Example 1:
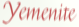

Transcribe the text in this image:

Yemenite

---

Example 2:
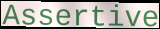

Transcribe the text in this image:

Assertive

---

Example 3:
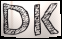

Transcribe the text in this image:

DK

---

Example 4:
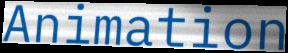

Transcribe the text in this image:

Animation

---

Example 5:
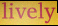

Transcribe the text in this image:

lively